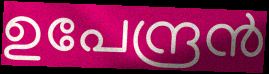
ഉപേന്ദ്രൻ